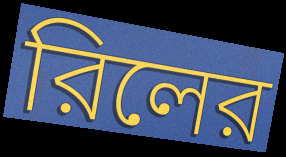
রিলের